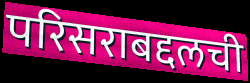
परिसराबद्दलची